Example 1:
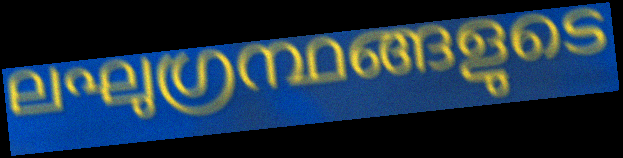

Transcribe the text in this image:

ലഘുഗ്രന്ഥങ്ങളുടെ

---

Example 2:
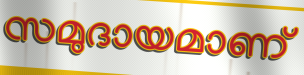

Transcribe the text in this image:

സമുദായമാണ്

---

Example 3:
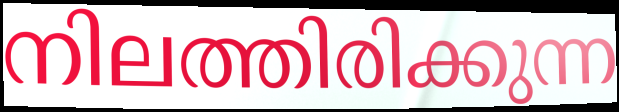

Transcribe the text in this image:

നിലത്തിരിക്കുന്ന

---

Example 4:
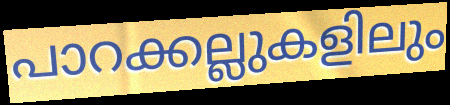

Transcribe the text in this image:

പാറക്കല്ലുകളിലും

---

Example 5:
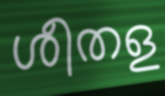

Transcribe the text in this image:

ശീതള